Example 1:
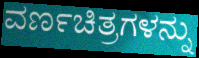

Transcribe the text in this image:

ವರ್ಣಚಿತ್ರಗಳನ್ನು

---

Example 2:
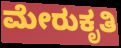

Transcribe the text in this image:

ಮೇರುಕೃತಿ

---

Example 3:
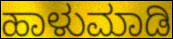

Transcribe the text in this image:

ಹಾಳುಮಾಡಿ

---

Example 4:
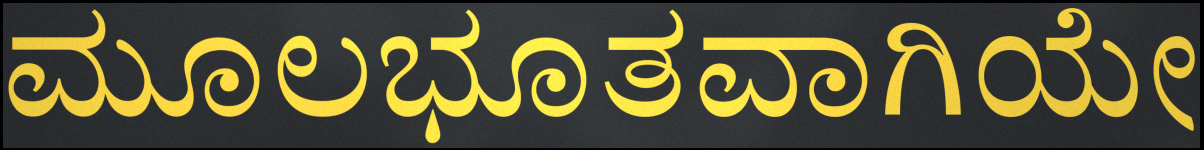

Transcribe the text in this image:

ಮೂಲಭೂತವಾಗಿಯೇ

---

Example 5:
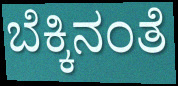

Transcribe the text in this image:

ಬೆಕ್ಕಿನಂತೆ